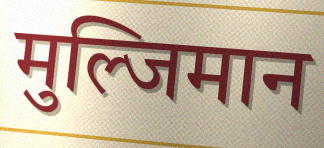
मुल्जिमान